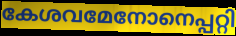
കേശവമേനോനെപ്പറ്റി